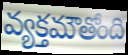
వ్యక్తమౌతోంది